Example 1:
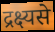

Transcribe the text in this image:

द्रक्ष्यसे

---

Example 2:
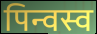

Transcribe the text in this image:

पिन्वस्व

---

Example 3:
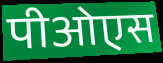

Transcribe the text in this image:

पीओएस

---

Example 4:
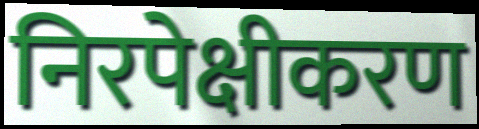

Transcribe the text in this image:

निरपेक्षीकरण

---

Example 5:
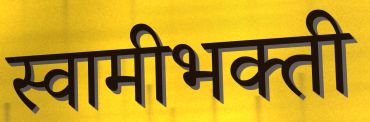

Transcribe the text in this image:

स्वामीभक्ती